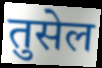
तुसेल